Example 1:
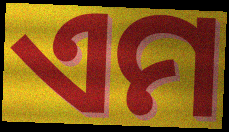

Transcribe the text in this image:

ଏମ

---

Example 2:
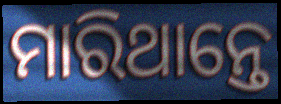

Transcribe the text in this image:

ମାରିଥାନ୍ତେ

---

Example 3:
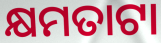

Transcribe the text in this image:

କ୍ଷମତାଟା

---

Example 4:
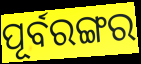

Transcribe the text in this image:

ପୂର୍ବରଙ୍ଗର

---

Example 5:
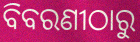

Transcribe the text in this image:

ବିବରଣୀଠାରୁ